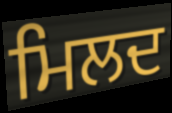
ਮਿਲਦ